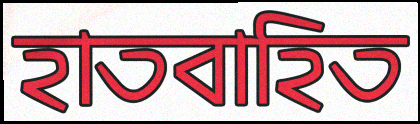
হাতবাহিত